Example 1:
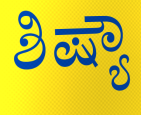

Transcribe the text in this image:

ಶಿಷ್ಯೌ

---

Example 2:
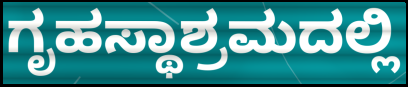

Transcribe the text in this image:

ಗೃಹಸ್ಥಾಶ್ರಮದಲ್ಲಿ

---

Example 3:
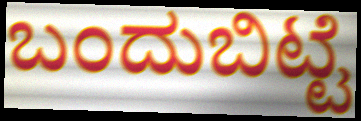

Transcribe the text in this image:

ಬಂದುಬಿಟ್ಟೆ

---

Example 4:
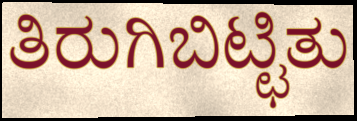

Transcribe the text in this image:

ತಿರುಗಿಬಿಟ್ಟಿತು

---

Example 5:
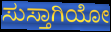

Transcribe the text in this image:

ಸುಸ್ತಾಗಿಯೋ